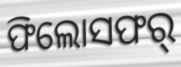
ଫିଲୋସଫର୍